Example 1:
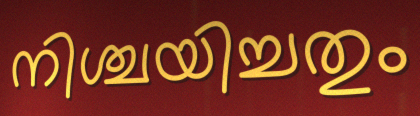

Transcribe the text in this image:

നിശ്ചയിച്ചതും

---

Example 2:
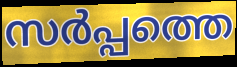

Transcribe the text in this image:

സർപ്പത്തെ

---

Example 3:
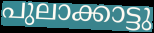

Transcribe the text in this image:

പുലാക്കാട്ടു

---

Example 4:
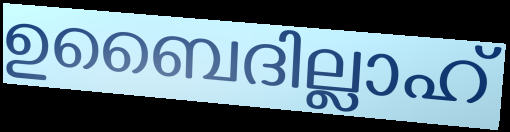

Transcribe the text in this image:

ഉബൈദില്ലാഹ്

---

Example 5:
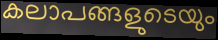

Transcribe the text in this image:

കലാപങ്ങളുടെയും